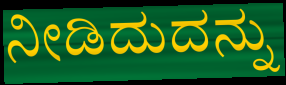
ನೀಡಿದುದನ್ನು